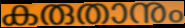
കരുതാനും